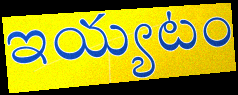
ఇయ్యటం